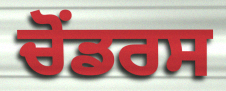
ਚੋਂਡਰਸ